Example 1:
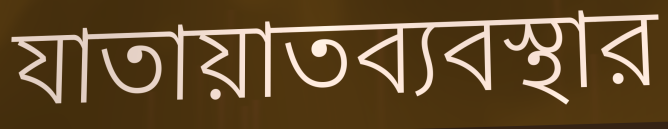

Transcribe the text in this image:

যাতায়াতব্যবস্থার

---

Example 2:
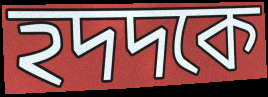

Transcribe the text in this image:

হদদকে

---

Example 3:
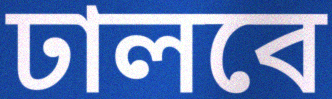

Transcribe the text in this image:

ঢালবে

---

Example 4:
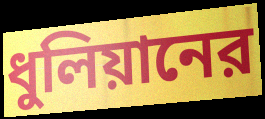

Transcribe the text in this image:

ধুলিয়ানের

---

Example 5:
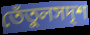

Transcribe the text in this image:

তেঁতুলসদৃশ